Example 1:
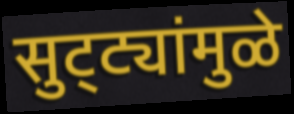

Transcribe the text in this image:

सुट्ट्यांमुळे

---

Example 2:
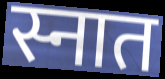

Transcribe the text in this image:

स्नात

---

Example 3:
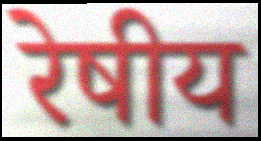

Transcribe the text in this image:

रेषीय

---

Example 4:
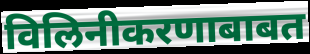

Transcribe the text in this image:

विलिनीकरणाबाबत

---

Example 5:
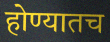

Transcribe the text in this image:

होण्यातच